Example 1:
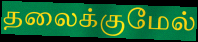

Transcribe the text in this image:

தலைக்குமேல்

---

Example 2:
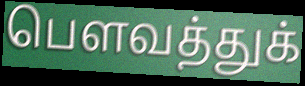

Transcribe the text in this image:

பௌவத்துக்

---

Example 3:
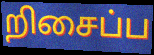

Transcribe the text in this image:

றிசைப்ப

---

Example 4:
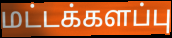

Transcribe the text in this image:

மட்டக்களப்பு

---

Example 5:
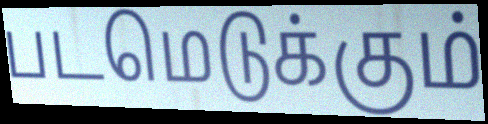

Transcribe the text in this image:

படமெடுக்கும்